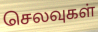
செலவுகள்